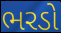
ભરડો